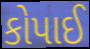
કોપાઈ